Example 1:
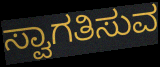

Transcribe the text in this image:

ಸ್ವಾಗತಿಸುವ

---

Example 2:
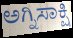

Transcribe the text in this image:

ಅಗ್ನಿಸಾಕ್ಷಿ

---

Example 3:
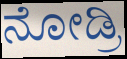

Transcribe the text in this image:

ನೋಡ್ರಿ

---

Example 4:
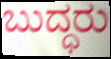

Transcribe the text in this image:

ಬುದ್ಧರು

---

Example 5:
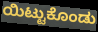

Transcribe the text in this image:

ಯಿಟ್ಟುಕೊಂಡು